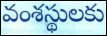
వంశస్థులకు